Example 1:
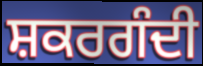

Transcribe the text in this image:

ਸ਼ਕਰਗੰਦੀ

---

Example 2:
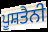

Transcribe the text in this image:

ਪੂਸ਼ਤੈਨੀ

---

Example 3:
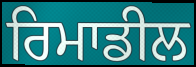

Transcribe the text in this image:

ਰਿਮਾਡੀਲ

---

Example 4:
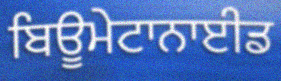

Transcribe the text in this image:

ਬਿਊਮੇਟਾਨਾਈਡ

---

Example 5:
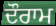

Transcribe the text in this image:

ਦੌਰਾਮ